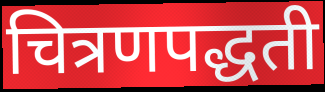
चित्रणपद्धती